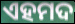
ଏହମଦ